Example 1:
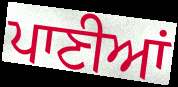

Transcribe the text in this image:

ਪਾਣੀਆਂ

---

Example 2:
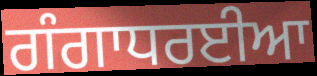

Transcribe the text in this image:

ਗੰਗਾਧਰਈਆ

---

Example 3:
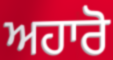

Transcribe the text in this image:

ਅਹਾਰੋ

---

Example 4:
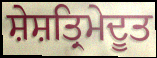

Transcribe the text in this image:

ਸ਼ੇਸ਼ਤ੍ਰਿਮੇਦੂਤ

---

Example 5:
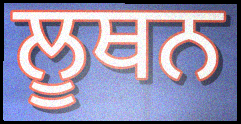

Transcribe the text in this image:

ਲੂਥਨ